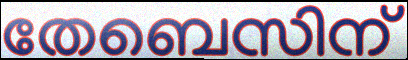
തേബെസിന്